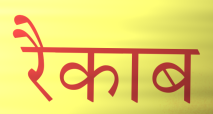
रैकाब